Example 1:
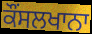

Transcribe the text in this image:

ਕੌਂਸਲਖਾਨਾ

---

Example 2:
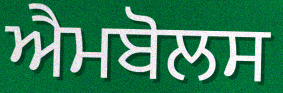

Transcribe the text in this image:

ਐਮਬੋਲਸ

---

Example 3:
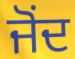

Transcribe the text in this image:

ਜੋਂਦ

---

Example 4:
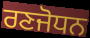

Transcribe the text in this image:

ਰਣਜੋਧਨ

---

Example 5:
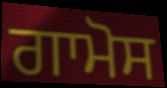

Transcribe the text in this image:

ਗਾਮੋਸ